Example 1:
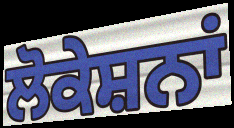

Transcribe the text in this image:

ਲੋਕੇਸ਼ਨਾਂ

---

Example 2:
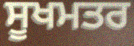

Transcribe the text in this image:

ਸੂਖਮਤਰ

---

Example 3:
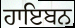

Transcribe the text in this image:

ਹਾਇਬਨ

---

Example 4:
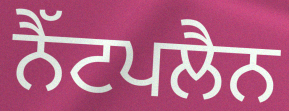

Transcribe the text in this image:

ਨੈੱਟਪਲੈਨ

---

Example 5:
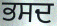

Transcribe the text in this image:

ਭਸਦ